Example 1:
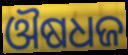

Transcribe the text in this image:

ଔଷଧଜ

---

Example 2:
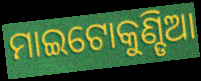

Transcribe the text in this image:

ମାଇଟୋକୁଣ୍ଡିଆ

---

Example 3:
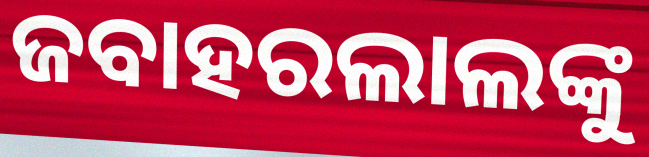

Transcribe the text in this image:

ଜବାହରଲାଲଙ୍କୁ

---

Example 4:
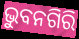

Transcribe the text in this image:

ଭୁବନଗିରି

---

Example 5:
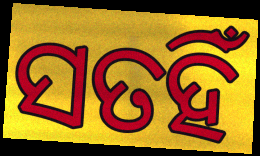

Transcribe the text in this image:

ସତହିଁ